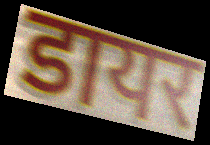
डायर